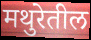
मथुरेतील